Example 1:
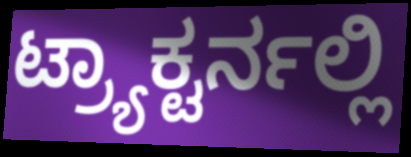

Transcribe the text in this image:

ಟ್ರ್ಯಾಕ್ಟರ್ನಲ್ಲಿ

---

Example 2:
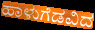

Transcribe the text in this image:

ಹಾಳುಗೆಡವಿದ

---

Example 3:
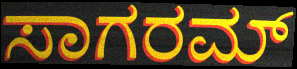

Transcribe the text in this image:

ಸಾಗರಮ್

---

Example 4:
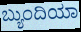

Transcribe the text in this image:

ಬ್ಯುಂದಿಯಾ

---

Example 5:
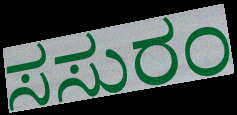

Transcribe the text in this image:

ಸಸುರಂ